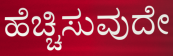
ಹೆಚ್ಚಿಸುವುದೇ